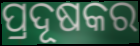
ପ୍ରଦୂଷକର